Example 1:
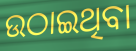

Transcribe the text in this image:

ଉଠାଇଥିବା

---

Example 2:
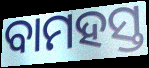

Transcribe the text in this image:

ବାମହସ୍ତ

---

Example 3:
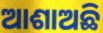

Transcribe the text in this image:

ଆଶାଅଛି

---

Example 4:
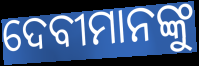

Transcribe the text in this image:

ଦେବୀମାନଙ୍କୁ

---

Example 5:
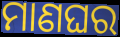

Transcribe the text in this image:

ମାଣଘର